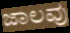
ಜಾಲವು